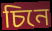
চিনে